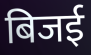
बिजई